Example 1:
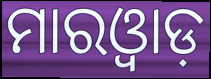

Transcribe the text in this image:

ମାରଓ୍ୱାଡ଼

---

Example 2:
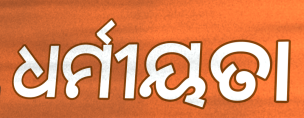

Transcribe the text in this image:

ଧର୍ମୀୟତା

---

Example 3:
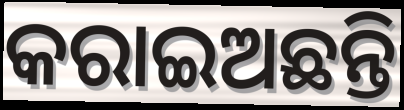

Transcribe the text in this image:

କରାଇଅଛନ୍ତି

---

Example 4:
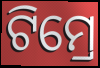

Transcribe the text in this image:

ଟିମ୍ରେ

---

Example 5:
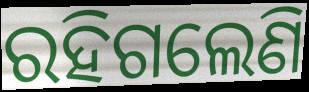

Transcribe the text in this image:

ରହିଗଲେଣି